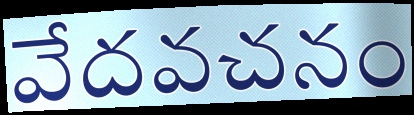
వేదవచనం